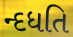
ન્દધતિ